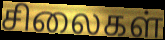
சிலைகள்